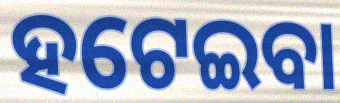
ହଟେଇବା